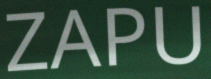
ZAPU